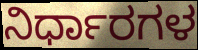
ನಿರ್ಧಾರಗಳ